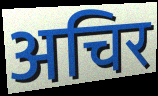
अचिर